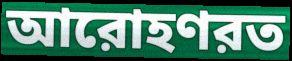
আরোহণরত